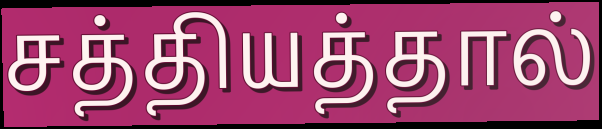
சத்தியத்தால்